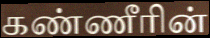
கண்ணீரின்